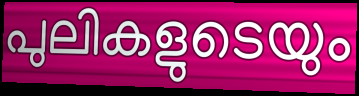
പുലികളുടെയും